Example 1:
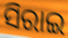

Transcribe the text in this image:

ସିରାଇ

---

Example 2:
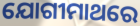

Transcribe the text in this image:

ଯୋଗୀମାଥରେ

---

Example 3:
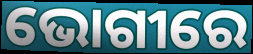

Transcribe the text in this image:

ଭୋଗୀରେ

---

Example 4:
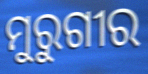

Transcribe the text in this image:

ମୁରୁଗୀର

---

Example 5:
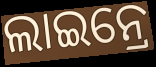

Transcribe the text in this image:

ଲାଇନ୍ରେ